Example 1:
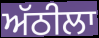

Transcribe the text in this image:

ਅੱਠੀਲਾ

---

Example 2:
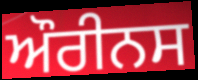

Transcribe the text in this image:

ਔਰੀਨਸ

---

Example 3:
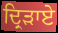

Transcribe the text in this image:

ਦ੍ਰਿੜਾਏ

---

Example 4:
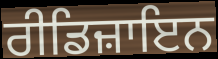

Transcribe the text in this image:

ਰੀਡਿਜ਼ਾਇਨ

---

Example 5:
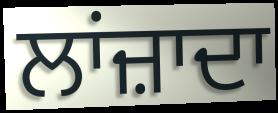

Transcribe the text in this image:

ਲਾਂਜ਼ਾਦਾ